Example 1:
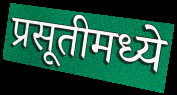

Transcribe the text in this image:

प्रसूतीमध्ये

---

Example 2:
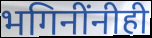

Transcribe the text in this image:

भगिनींनीही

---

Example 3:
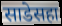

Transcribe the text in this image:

साडेसहा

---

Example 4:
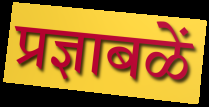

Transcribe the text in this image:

प्रज्ञाबळें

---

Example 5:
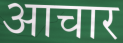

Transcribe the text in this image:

आचार